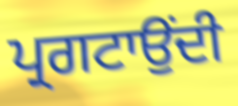
ਪ੍ਰਗਟਾਉਂਦੀ